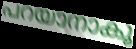
പറയാനാകൂ